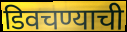
डिवचण्याची